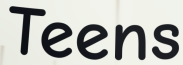
Teens